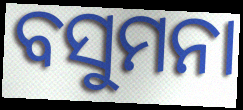
ବସୁମନା